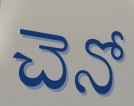
చెనో